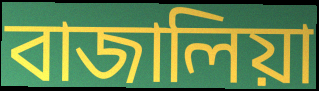
বাজালিয়া